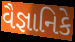
વૈજ્ઞાનિકે